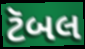
ટૅબલ